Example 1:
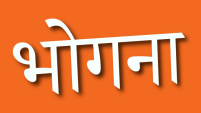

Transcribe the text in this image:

भोगना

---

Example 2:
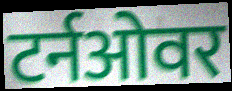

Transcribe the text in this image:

टर्नओवर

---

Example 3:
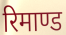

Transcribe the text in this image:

रिमाण्ड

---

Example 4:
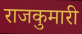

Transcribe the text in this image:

राजकुमारी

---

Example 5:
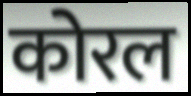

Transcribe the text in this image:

कोरल